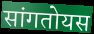
सांगतोयस